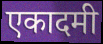
एकादमी